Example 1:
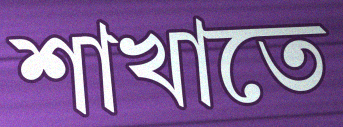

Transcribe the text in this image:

শাখাতে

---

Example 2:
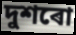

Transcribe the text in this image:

দুশৰো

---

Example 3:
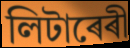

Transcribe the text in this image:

লিটাৰেৰী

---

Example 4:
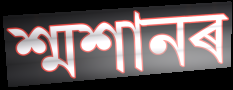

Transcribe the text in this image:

শ্মশানৰ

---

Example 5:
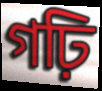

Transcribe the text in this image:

গঢ়ি